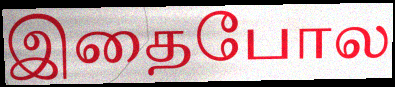
இதைபோல